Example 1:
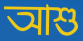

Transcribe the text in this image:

আশু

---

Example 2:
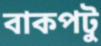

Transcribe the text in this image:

বাকপটু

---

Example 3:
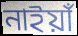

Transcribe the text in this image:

নাইয়াঁ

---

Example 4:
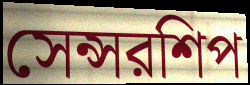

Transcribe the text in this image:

সেন্সরশিপ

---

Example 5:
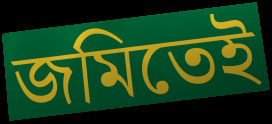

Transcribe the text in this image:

জমিতেই